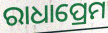
ରାଧାପ୍ରେମ